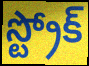
స్ట్రోక్